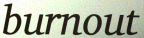
burnout